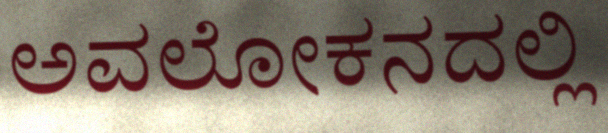
ಅವಲೋಕನದಲ್ಲಿ